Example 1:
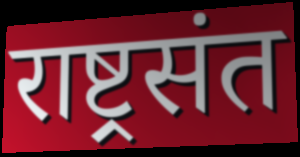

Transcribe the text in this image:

राष्ट्रसंत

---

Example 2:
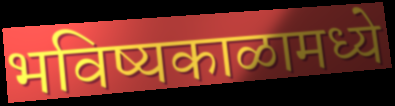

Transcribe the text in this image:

भविष्यकाळामध्ये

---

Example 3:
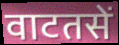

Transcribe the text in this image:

वाटतसें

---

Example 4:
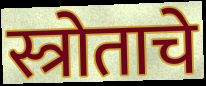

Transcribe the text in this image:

स्त्रोताचे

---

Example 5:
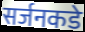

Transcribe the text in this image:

सर्जनकडे